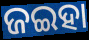
ଜଇହା